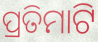
ପ୍ରତିମାଟି